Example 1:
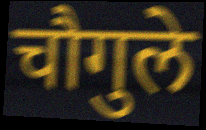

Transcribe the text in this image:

चौगुले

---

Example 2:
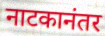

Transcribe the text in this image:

नाटकानंतर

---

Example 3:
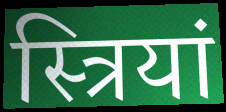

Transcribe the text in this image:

स्त्रियां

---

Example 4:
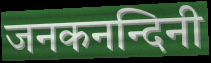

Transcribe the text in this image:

जनकनन्दिनी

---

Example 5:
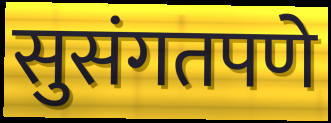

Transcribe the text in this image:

सुसंगतपणे